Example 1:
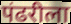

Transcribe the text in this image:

पंढरीला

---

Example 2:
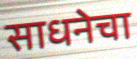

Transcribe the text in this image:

साधनेचा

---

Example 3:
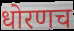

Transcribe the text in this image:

धोरणच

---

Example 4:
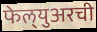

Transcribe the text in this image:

फेल्युअरची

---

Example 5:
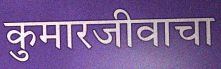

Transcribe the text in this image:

कुमारजीवाचा